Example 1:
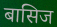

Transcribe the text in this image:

बासिज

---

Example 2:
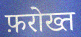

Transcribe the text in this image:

फ़रोख्त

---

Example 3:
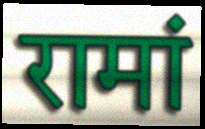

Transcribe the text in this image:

रामां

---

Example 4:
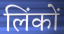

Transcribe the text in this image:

लिंकों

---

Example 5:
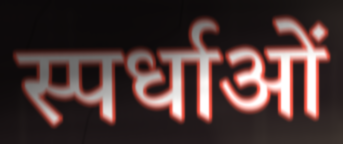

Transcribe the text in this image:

स्‍पर्धाओं